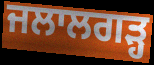
ਜਲਾਲਗੜ੍ਹ